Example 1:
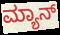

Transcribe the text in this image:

ಮ್ಯಾನ್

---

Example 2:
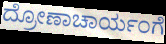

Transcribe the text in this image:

ದ್ರೋಣಾಚಾರ್ಯಂಗೆ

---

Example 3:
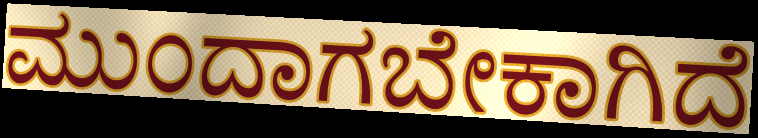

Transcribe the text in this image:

ಮುಂದಾಗಬೇಕಾಗಿದೆ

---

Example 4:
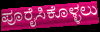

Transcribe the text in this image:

ಪೂರೈಸಿಕೊಳ್ಳಲು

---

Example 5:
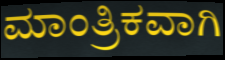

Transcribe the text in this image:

ಮಾಂತ್ರಿಕವಾಗಿ